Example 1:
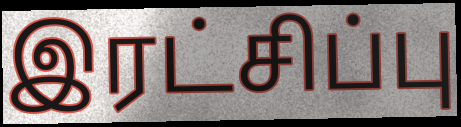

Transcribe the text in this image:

இரட்சிப்பு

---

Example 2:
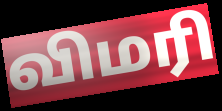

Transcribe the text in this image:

விமரி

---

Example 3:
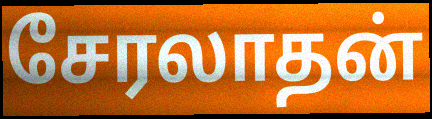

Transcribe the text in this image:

சேரலாதன்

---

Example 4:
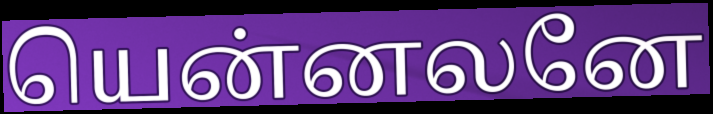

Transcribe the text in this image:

யென்னலனே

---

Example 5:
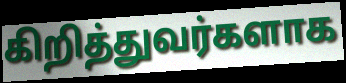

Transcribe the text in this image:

கிறித்துவர்களாக